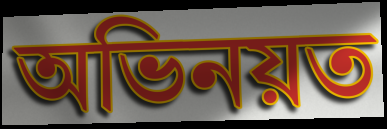
অভিনয়ত